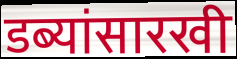
डब्यांसारखी